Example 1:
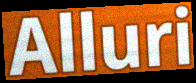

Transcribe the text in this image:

Alluri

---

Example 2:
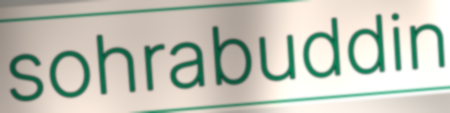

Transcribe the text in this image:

sohrabuddin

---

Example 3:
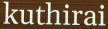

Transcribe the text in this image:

kuthirai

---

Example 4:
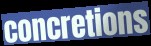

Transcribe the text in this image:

concretions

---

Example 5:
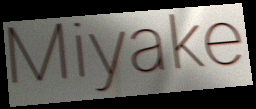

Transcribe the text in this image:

Miyake